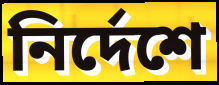
নিৰ্দেশে